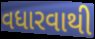
વધારવાથી